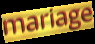
mariage